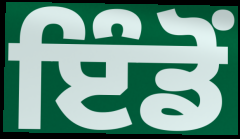
ਇੰਡੋਂ